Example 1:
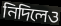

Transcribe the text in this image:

নিদিলেও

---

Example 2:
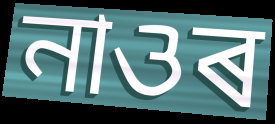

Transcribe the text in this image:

নাওৰ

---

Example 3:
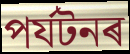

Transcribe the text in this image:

পৰ্যটনৰ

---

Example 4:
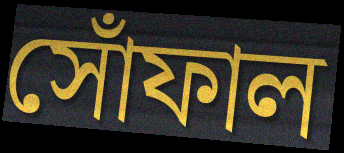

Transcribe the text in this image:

সোঁফাল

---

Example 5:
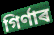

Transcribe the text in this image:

গিৰ্ণাৰ